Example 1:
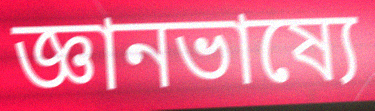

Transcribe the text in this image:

জ্ঞানভাষ্যে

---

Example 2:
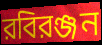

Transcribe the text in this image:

রবিরঞ্জন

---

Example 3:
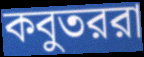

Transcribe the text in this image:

কবুতররা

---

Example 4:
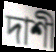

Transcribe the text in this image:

দাশী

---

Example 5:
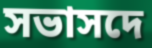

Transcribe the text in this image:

সভাসদে